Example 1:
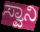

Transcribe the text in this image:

ಸ್ವಾನಿ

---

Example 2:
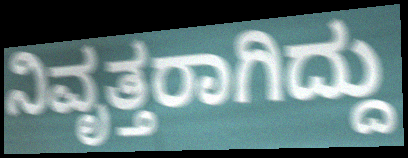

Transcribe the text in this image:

ನಿವೃತ್ತರಾಗಿದ್ದು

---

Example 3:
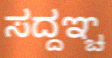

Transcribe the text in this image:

ಸದ್ದಞ್ಚ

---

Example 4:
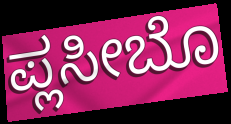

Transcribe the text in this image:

ಪ್ಲಸೀಬೊ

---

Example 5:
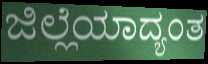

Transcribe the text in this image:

ಜಿಲ್ಲೆಯಾದ್ಯಂತ